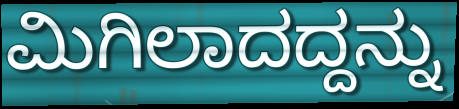
ಮಿಗಿಲಾದದ್ದನ್ನು